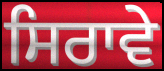
ਸਿਰਾਵੇ